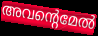
അവന്റെമേൽ